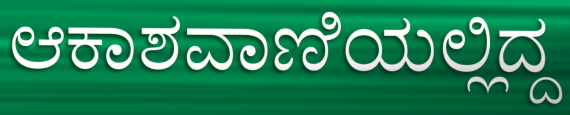
ಆಕಾಶವಾಣಿಯಲ್ಲಿದ್ದ